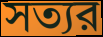
সত্যর